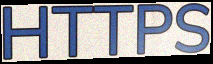
HTTPS